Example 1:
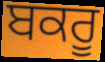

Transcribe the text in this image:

ਬਕਰੂ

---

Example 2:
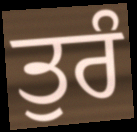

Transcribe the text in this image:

ਤੁਰੰ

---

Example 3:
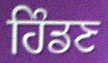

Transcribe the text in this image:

ਹਿੰਡਣ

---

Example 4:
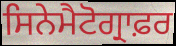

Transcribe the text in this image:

ਸਿਨੇਮੈਟੋਗ੍ਰਾਫ਼ਰ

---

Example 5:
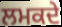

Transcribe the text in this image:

ਲਮਕਦੇ